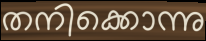
തനിക്കൊന്നു